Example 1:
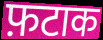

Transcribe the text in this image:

फ़टाक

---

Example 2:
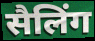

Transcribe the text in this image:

सैलिंग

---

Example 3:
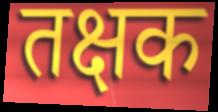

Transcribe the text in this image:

तक्षक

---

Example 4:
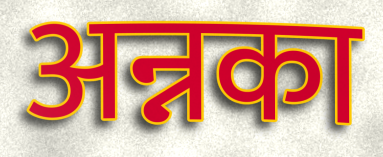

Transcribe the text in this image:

अन्नका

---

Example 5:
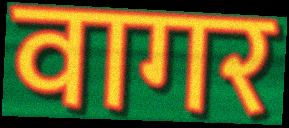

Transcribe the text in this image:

वागर